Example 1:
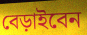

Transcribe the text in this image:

বেড়াইবেন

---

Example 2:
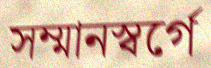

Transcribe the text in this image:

সম্মানস্বর্গে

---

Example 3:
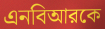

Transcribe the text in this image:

এনবিআরকে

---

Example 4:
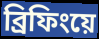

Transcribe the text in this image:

ব্রিফিংয়ে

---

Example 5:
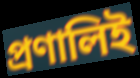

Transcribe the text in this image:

প্রণালিই